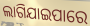
ଲାଗିଯାଇପାରେ